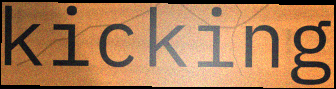
kicking